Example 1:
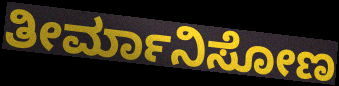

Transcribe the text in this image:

ತೀರ್ಮಾನಿಸೋಣ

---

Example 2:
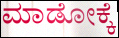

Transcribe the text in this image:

ಮಾಡೋಕ್ಕೆ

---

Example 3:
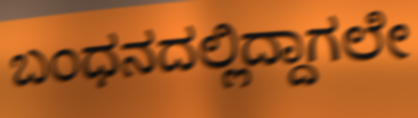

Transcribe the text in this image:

ಬಂಧನದಲ್ಲಿದ್ದಾಗಲೇ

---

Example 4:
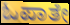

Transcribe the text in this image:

ಓಪಾತೇ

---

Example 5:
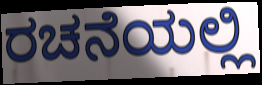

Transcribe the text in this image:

ರಚನೆಯಲ್ಲಿ